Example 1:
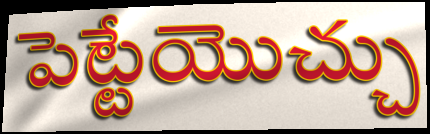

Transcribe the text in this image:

పెట్టేయొచ్చు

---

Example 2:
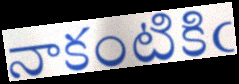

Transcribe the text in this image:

నాకంటికిఁ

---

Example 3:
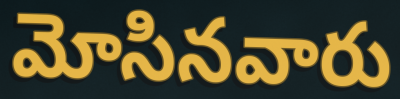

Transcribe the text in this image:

మోసినవారు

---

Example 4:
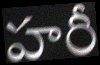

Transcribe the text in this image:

హరీ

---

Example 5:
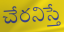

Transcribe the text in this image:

చేరనిస్తే